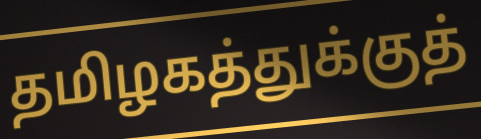
தமிழகத்துக்குத்